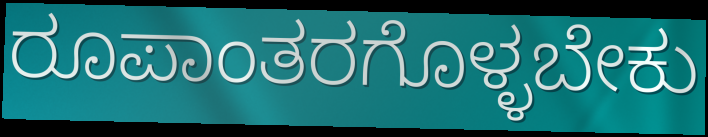
ರೂಪಾಂತರಗೊಳ್ಳಬೇಕು